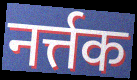
नर्त्तक